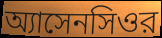
অ্যাসেনসিওর